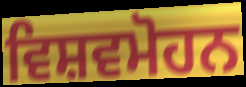
ਵਿਸ਼ਵਮੋਹਨ